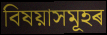
বিষয়াসমূহৰ